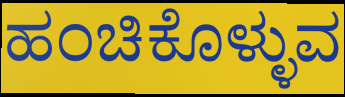
ಹಂಚಿಕೊಳ್ಳುವ